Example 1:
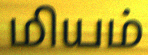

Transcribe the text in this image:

மியம்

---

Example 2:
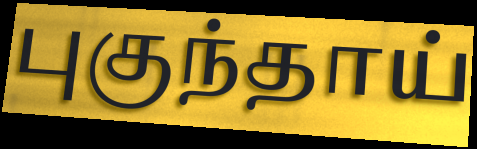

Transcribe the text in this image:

புகுந்தாய்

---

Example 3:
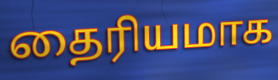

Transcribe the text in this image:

தைரியமாக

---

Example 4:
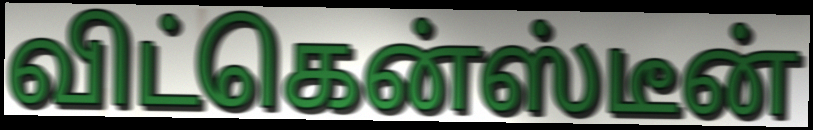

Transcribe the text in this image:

விட்கென்ஸ்டீன்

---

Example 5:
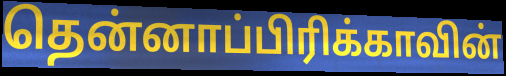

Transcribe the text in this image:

தென்னாப்பிரிக்காவின்